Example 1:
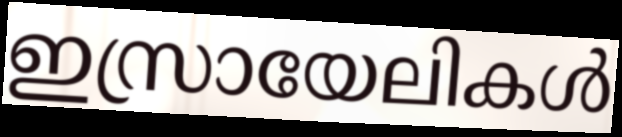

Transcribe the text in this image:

ഇസ്രായേലികൾ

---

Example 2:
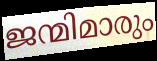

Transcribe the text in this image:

ജന്മിമാരും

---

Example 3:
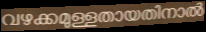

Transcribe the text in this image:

വഴക്കമുള്ളതായതിനാൽ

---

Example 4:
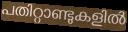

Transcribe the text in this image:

പതിറ്റാണ്ടുകളിൽ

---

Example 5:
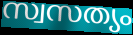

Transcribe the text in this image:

സ്വസത്യം